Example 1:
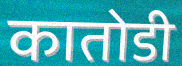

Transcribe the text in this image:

कातोडी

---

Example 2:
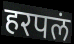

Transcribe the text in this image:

हरपलं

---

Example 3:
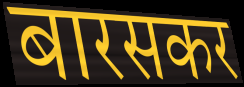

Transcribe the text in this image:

बारसकर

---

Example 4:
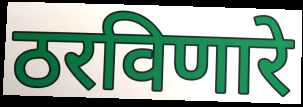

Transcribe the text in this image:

ठरविणारे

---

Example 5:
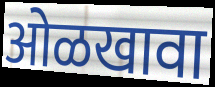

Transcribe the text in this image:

ओळखावा